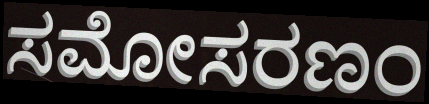
ಸಮೋಸರಣಂ